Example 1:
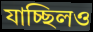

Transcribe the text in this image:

যাচ্ছিলও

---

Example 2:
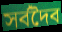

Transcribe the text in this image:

সর্বদৈব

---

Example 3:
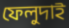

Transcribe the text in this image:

ফেলুদাই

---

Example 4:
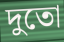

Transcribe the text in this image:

দুতো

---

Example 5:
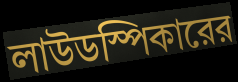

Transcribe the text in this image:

লাউডস্পিকারের